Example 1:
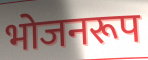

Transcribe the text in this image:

भोजनरूप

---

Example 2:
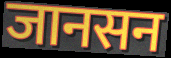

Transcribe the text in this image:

जानसन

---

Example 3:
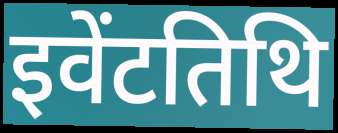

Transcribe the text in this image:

इवेंटतिथि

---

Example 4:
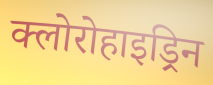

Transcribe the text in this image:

क्लोरोहाइड्रिन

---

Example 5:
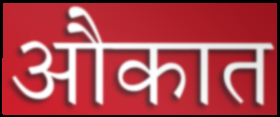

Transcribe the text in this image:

औकात